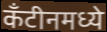
कँटीनमध्ये